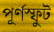
পূর্ণস্ফুট